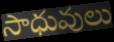
సాధువులు